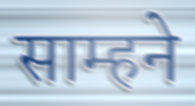
साम्हने